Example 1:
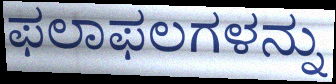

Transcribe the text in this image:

ಫಲಾಫಲಗಳನ್ನು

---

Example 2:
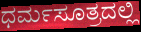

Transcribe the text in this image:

ಧರ್ಮಸೂತ್ರದಲ್ಲಿ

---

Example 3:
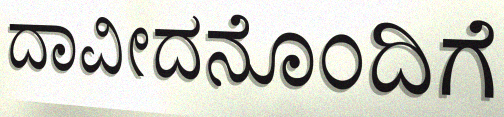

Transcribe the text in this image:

ದಾವೀದನೊಂದಿಗೆ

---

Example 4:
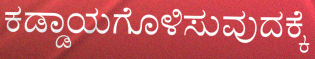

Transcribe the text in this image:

ಕಡ್ಡಾಯಗೊಳಿಸುವುದಕ್ಕೆ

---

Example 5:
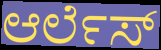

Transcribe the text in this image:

ಆರ್ಲೆಸ್